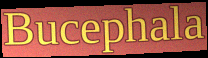
Bucephala